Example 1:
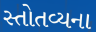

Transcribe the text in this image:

સ્તોતવ્યના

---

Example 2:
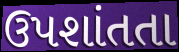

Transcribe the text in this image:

ઉપશાંતતા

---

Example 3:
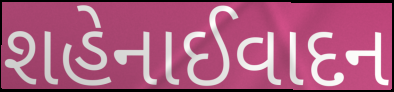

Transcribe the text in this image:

શહેનાઈવાદન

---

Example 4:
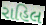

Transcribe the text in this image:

રાહિલ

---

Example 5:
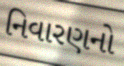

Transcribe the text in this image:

નિવારણનો